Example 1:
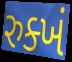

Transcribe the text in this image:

રુક્ખં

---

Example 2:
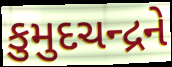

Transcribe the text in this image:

કુમુદચન્દ્રને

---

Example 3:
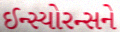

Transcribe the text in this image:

ઈન્સ્યોરન્સને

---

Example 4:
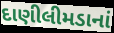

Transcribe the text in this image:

દાણીલીમડાનાં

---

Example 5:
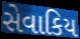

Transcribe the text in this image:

સેવાકિય